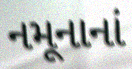
નમૂનાનાં